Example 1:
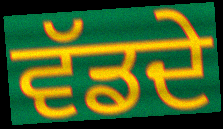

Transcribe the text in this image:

ਵੱਡਦੇ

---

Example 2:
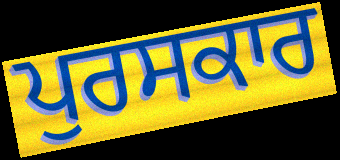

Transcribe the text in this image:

ਪੁਰਸਕਾਰ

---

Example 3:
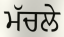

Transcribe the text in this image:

ਮੱਚਲੇ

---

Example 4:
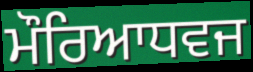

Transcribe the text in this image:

ਮੌਰਿਆਧਵਜ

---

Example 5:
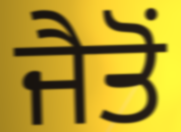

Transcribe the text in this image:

ਜੈਤੋਂ